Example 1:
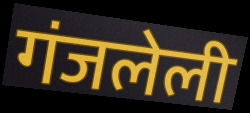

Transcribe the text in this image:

गंजलेली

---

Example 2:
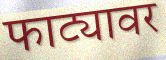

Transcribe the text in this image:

फाट्यावर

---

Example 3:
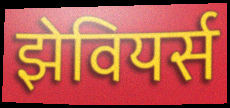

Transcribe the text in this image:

झेवियर्स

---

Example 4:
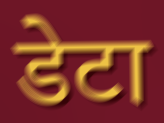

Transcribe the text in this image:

डेटा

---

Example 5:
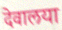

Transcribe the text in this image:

देवालया